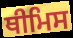
ਥੀਮਿਸ